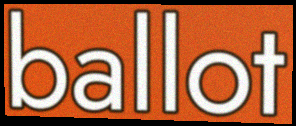
ballot